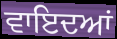
ਵਾਇਦਆਂ